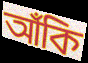
আঁকি